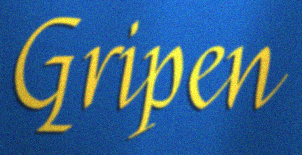
Gripen